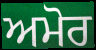
ਅਮੋਰ